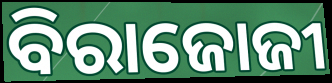
ବିରାଜୋଜୀ